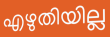
എഴുതിയില്ല